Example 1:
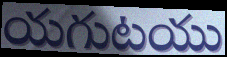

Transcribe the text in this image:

యగుటయు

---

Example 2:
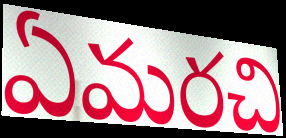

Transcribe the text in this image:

ఏమరచి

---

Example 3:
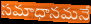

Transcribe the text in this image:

సమాధానమనే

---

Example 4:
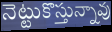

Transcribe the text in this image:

నెట్టుకొస్తున్నావు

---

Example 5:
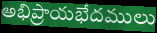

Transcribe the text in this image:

అభిప్రాయభేదములు